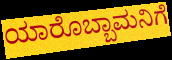
ಯಾರೊಬ್ಬಾಮನಿಗೆ